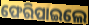
ଫେରିପାଇଲେ